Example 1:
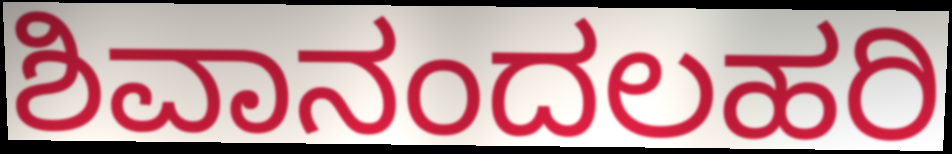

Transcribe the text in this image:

ಶಿವಾನಂದಲಹರಿ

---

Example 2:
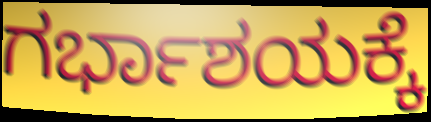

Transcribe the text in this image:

ಗರ್ಭಾಶಯಕ್ಕೆ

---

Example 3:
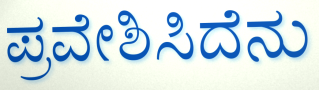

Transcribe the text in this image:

ಪ್ರವೇಶಿಸಿದೆನು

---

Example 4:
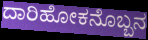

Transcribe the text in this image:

ದಾರಿಹೋಕನೊಬ್ಬನ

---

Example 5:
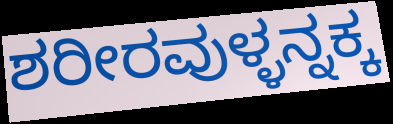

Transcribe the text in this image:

ಶರೀರವುಳ್ಳನ್ನಕ್ಕ